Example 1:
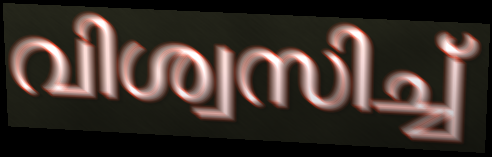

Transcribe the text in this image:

വിശ്വസിച്ച്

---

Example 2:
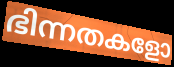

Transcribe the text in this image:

ഭിന്നതകളോ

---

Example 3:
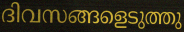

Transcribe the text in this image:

ദിവസങ്ങളെടുത്തു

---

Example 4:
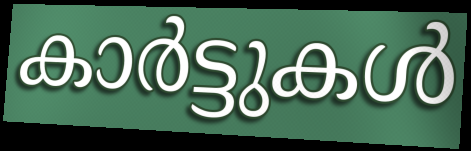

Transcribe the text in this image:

കാർട്ടുകൾ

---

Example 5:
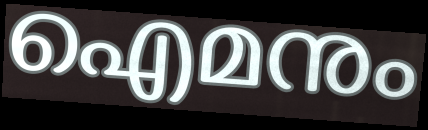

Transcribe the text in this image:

ഐമനും